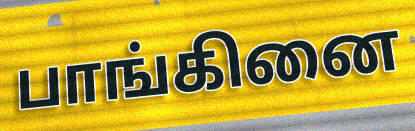
பாங்கினை